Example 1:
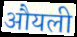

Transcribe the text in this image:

औयली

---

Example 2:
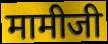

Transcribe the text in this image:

मामीजी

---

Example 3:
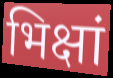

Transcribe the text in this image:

भिक्षां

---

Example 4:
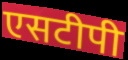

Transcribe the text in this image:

एसटीपी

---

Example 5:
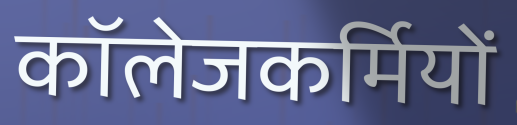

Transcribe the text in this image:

कॉलेजकर्मियों